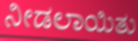
ನೀಡಲಾಯಿತು